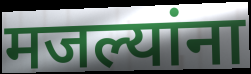
मजल्यांना